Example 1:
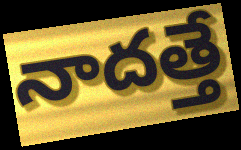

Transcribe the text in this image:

నాదత్తే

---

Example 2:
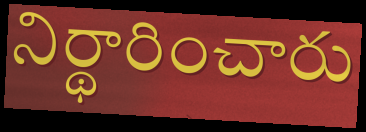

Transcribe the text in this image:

నిర్థారించారు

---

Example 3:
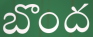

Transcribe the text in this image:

బొంద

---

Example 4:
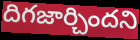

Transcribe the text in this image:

దిగజార్చిందని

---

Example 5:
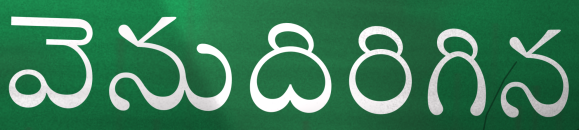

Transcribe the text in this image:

వెనుదిరిగిన